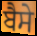
ਬੈਸੇ